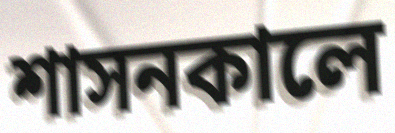
শাসনকালে